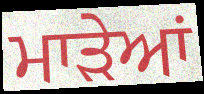
ਮਾੜੇਆਂ